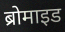
ब्रोमाइड